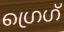
ഗ്രെഗ്